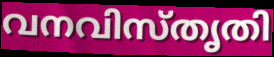
വനവിസ്തൃതി